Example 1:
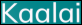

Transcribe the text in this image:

Kaalai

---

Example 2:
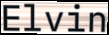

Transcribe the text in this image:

Elvin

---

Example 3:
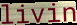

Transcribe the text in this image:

livin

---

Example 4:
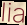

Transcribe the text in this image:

lia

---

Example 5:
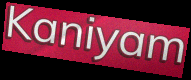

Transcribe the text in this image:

Kaniyam